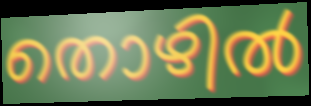
തൊഴിൽ